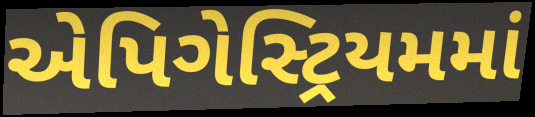
એપિગેસ્ટ્રિયમમાં